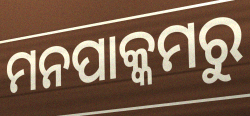
ମନପାକ୍କମରୁ